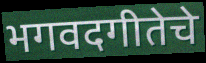
भगवदगीतेचे